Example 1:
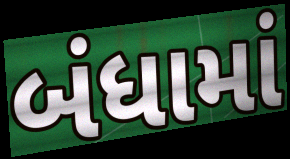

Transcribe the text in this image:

બંધામાં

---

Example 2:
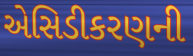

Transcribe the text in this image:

એસિડીકરણની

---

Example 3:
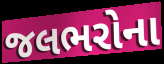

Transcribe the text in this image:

જલભરોના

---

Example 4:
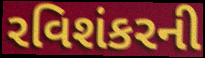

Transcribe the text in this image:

રવિશંકરની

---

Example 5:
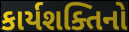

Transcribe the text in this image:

કાર્યશક્તિનો